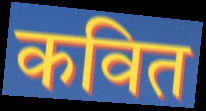
कवित